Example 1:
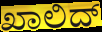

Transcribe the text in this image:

ಖಾಲಿದ್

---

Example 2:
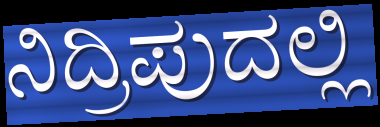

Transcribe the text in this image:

ನಿದ್ರಿಪುದಲ್ಲಿ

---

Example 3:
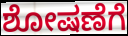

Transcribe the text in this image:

ಶೋಷಣೆಗೆ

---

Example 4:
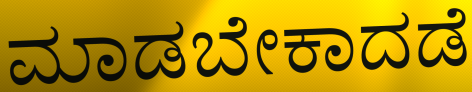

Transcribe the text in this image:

ಮಾಡಬೇಕಾದಡೆ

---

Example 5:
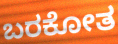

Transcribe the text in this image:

ಬರಕೋತ